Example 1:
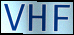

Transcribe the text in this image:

VHF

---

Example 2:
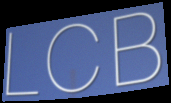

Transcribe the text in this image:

LCB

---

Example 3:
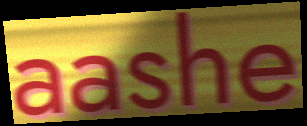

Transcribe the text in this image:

aashe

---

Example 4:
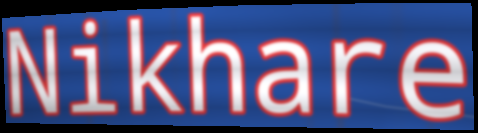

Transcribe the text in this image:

Nikhare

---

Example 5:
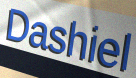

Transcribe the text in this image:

Dashiel